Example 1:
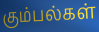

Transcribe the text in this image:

கும்பல்கள்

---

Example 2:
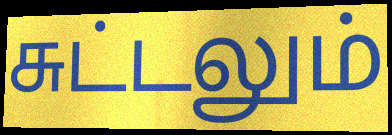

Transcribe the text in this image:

சுட்டலும்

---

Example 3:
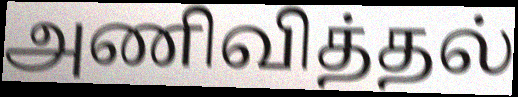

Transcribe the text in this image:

அணிவித்தல்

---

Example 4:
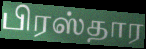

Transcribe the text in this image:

பிரஸ்தார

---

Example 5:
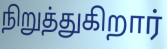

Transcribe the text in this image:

நிறுத்துகிறார்